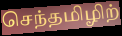
செந்தமிழிற்